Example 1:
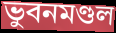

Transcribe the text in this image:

ভুবনমণ্ডল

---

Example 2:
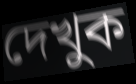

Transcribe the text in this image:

দেখুক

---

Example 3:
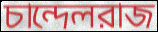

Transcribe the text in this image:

চান্দেলরাজ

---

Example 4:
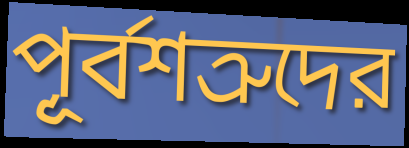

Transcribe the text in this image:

পূর্বশত্রুদের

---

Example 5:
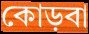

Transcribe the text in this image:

কোড়বা